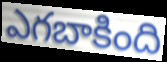
ఎగబాకింది